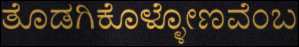
ತೊಡಗಿಕೊಳ್ಳೋಣವೆಂಬ